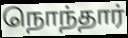
நொந்தார்